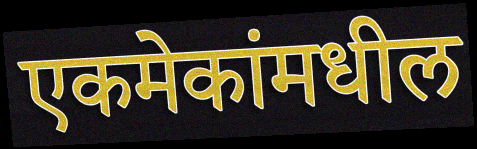
एकमेकांमधील